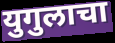
युगुलाचा